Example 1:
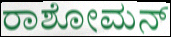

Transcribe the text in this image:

ರಾಶೋಮನ್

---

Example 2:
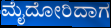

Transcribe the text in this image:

ಮೈದೋರಿದಾಗ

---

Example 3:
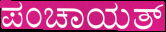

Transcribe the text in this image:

ಪಂಚಾಯತ್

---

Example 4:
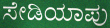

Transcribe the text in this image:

ಸೇಡಿಯಾಪು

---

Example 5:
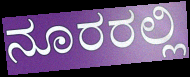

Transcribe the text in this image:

ನೂರರಲ್ಲಿ